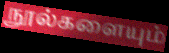
நூல்களையும்